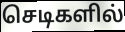
செடிகளில்